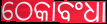
ଠେକାବଂଧା